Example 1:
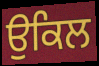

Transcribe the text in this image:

ਉਕਿਲ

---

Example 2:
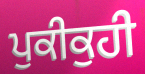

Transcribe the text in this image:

ਪੁਕੀਕੁਹੀ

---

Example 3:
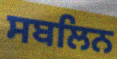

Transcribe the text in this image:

ਸਬਲਿਨ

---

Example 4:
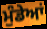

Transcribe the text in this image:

ਮੁੰਡੇਆਂ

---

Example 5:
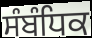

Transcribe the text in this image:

ਸੰਬੰਧਿਕ